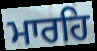
ਮਾਰਹਿ